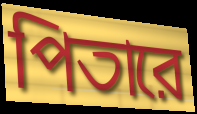
পিতারে